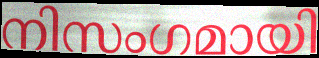
നിസംഗമായി